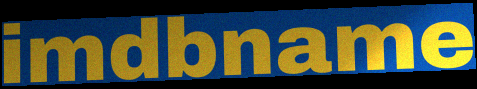
imdbname